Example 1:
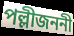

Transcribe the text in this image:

পল্লীজননী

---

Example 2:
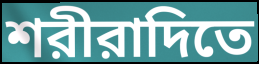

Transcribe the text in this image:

শরীরাদিতে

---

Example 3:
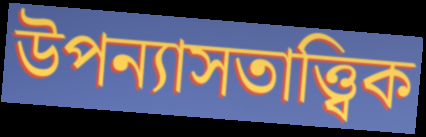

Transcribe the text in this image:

উপন্যাসতাত্ত্বিক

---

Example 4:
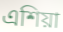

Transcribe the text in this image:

এশিয়া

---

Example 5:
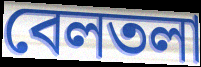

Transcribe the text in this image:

বেলতলা